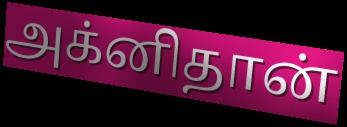
அக்னிதான்